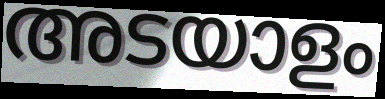
അടയാളം